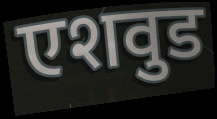
एशवुड